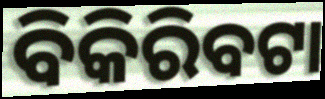
ବିକିରିବଟା